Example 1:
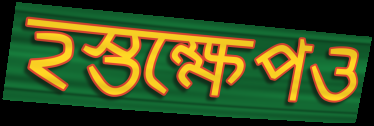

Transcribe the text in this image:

হস্তক্ষেপও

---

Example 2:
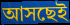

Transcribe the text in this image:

আসছেই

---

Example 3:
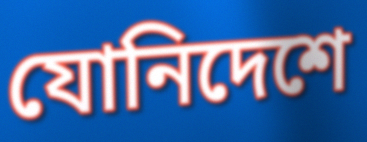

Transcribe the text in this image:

যোনিদেশে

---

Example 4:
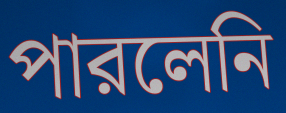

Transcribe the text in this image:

পারলেনি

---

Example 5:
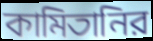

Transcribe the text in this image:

কামিতানির